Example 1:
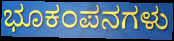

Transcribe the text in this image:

ಭೂಕಂಪನಗಳು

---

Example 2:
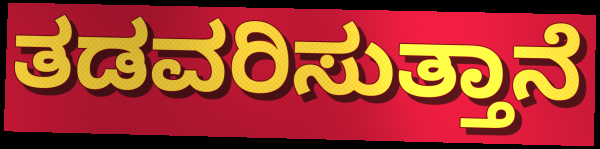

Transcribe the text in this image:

ತಡವರಿಸುತ್ತಾನೆ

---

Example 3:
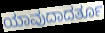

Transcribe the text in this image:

ಯಾವುದಾದರ್ತೂ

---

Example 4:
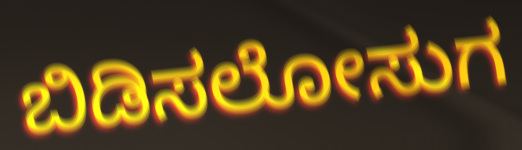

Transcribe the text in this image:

ಬಿಡಿಸಲೋಸುಗ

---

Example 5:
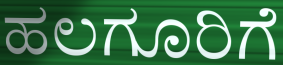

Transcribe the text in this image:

ಹಲಗೂರಿಗೆ